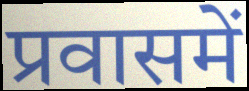
प्रवासमें